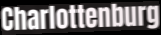
Charlottenburg